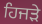
ਹਿਜੜੇ